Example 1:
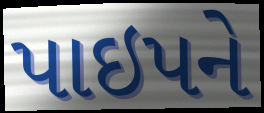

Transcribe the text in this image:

પાઇપને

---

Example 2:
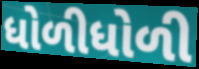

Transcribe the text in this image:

ધોળીધોળી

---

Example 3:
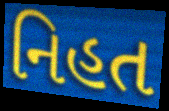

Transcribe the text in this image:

નિહત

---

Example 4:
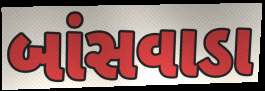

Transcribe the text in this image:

બાંસવાડા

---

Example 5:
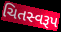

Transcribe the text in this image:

ચિતસ્વરૂપ